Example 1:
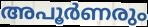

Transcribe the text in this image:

അപൂർണരും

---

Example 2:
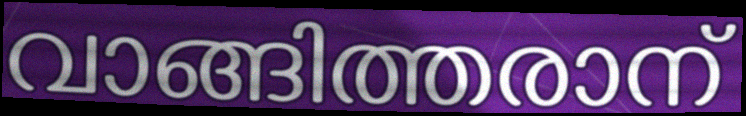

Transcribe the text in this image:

വാങ്ങിത്തരാന്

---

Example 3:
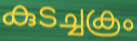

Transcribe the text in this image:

കുടച്ചക്രം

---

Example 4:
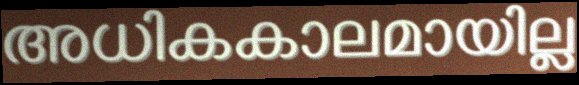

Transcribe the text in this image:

അധികകാലമായില്ല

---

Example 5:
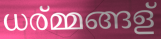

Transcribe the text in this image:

ധര്മ്മങ്ങള്